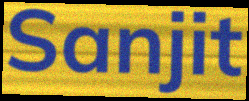
Sanjit